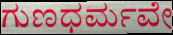
ಗುಣಧರ್ಮವೇ